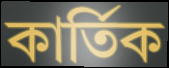
কাৰ্তিক